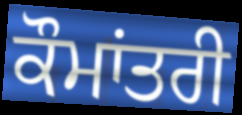
ਕੌਮਾਂਤਰੀ